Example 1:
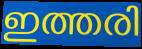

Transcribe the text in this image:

ഇത്തരി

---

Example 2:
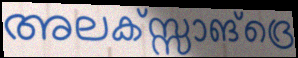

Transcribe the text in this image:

അലക്സ്സാങ്ദ്രെ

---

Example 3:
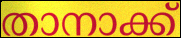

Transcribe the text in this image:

താനാക്ക്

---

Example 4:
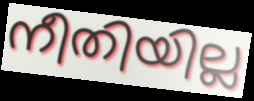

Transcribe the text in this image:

നീതിയില്ല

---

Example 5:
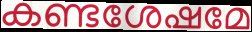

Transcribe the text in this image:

കണ്ടശേഷമേ